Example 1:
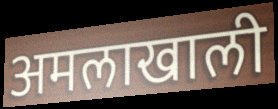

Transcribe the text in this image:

अमलाखाली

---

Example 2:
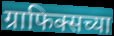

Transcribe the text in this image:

ग्राफिक्सच्या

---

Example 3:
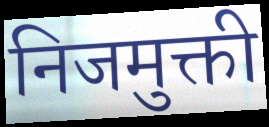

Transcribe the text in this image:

निजमुक्ती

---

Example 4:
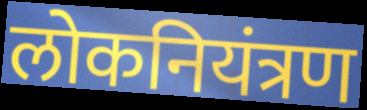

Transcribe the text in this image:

लोकनियंत्रण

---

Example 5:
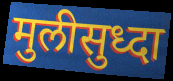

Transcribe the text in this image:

मुलीसुध्दा